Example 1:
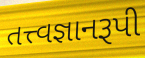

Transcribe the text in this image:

તત્ત્વજ્ઞાનરૂપી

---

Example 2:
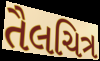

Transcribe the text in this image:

તૈલચિત્ર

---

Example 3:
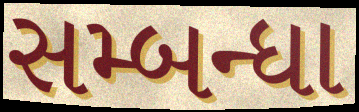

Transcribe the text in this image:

સમ્બન્ધા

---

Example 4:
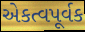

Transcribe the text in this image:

એકત્વપૂર્વક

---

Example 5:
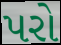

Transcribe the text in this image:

પરો